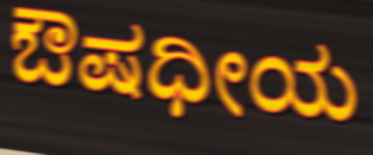
ಔಷಧೀಯ